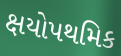
ક્ષયોપથમિક